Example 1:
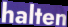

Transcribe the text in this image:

halten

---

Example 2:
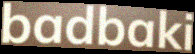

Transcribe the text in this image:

badbaki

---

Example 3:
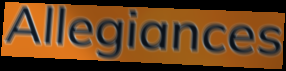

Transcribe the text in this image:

Allegiances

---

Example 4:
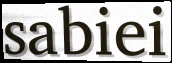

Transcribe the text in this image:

sabiei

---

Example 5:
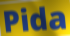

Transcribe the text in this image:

Pida